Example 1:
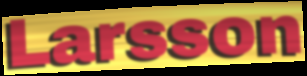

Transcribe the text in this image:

Larsson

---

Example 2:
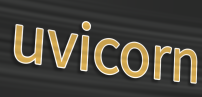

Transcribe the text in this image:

uvicorn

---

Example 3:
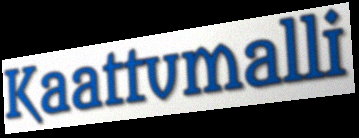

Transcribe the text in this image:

Kaattumalli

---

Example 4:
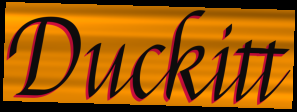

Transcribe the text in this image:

Duckitt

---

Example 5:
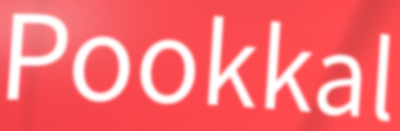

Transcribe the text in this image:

Pookkal